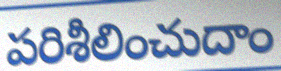
పరిశీలించుదాం